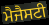
ਮੈਜੈਸਟੀ